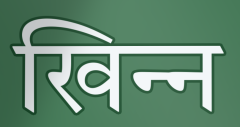
खिन्‍न